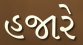
હજારે